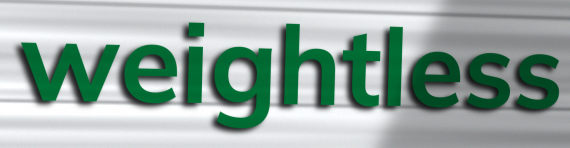
weightless